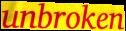
unbroken